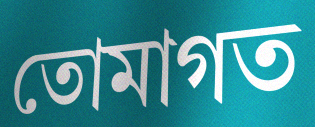
তোমাগত